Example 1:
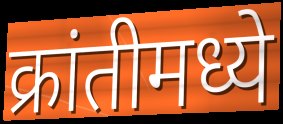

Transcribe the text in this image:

क्रांतीमध्ये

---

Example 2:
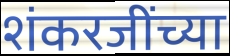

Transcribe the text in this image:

शंकरजींच्या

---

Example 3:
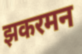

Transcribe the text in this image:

झकरमन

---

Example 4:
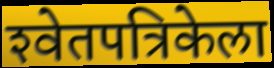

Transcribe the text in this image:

श्वेतपत्रिकेला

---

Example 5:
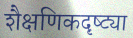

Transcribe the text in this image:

शैक्षणिकदृष्ट्या